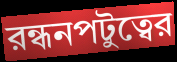
রন্ধনপটুত্বের